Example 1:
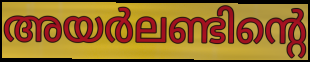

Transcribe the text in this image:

അയർലണ്ടിന്റെ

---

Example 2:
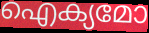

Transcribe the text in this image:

ഐക്യമോ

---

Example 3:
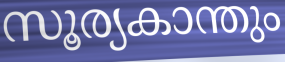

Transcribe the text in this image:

സൂര്യകാന്തും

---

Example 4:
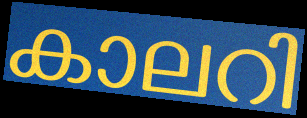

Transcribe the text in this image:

കാലറി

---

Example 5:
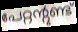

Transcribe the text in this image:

പേറ്റന്റുണ്ട്